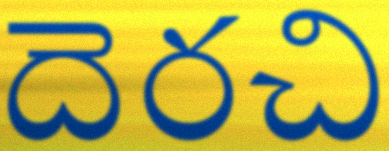
దెరచి